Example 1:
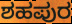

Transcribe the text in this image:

ಶಹಪುರ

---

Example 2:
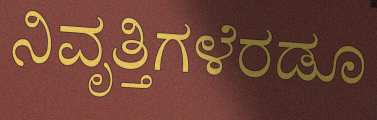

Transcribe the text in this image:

ನಿವೃತ್ತಿಗಳೆರಡೂ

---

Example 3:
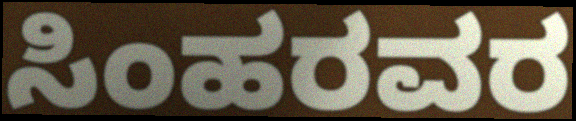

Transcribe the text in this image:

ಸಿಂಹರವರ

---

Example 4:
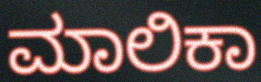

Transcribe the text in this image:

ಮಾಲಿಕಾ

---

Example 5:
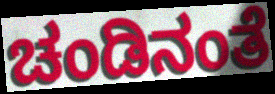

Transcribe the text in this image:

ಚಂಡಿನಂತೆ